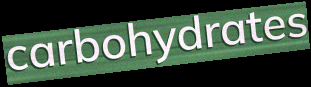
carbohydrates